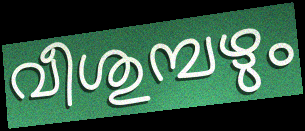
വീശുമ്പഴും